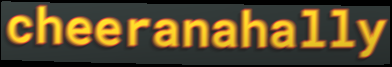
cheeranahally